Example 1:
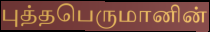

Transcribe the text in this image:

புத்தபெருமானின்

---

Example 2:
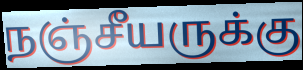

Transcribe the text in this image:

நஞ்சீயருக்கு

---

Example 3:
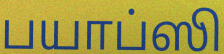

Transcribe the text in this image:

பயாப்ஸி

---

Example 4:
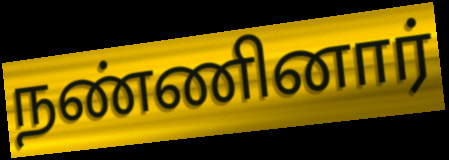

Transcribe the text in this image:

நண்ணினார்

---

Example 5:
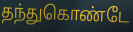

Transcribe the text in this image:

தந்துகொண்டே